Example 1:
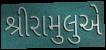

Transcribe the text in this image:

શ્રીરામુલુએ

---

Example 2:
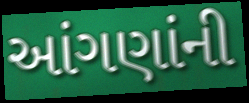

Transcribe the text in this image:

આંગણાંની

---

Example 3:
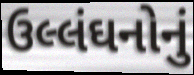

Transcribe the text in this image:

ઉલ્લંઘનોનું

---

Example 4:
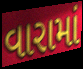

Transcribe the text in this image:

વારામાં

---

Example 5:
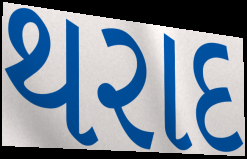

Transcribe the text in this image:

થરાદ